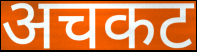
अचकट